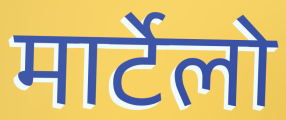
मार्टेलो